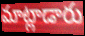
మాట్లాడారు